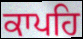
ਕਾਪਹਿ